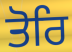
ਤੋਰਿ